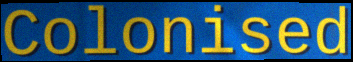
Colonised